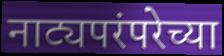
नाट्यपरंपरेच्या